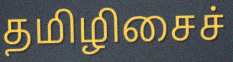
தமிழிசைச்